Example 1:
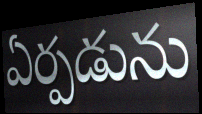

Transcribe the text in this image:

ఏర్పడును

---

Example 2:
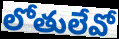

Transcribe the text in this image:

లోతులేవో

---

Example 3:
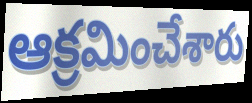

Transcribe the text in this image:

ఆక్రమించేశారు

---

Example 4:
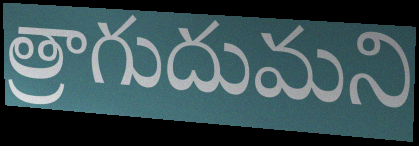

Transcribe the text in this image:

త్రాగుదుమని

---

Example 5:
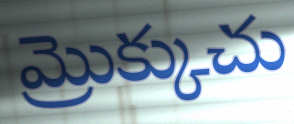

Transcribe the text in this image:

మ్రొక్కుచు